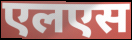
एलएस